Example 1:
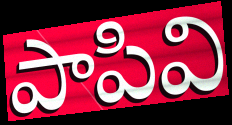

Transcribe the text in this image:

పాపివి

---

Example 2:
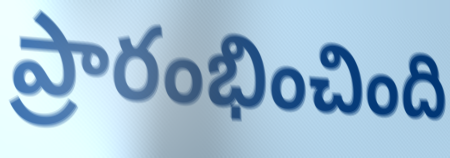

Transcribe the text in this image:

ప్రారంభించింది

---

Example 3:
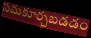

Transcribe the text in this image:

సమకూర్చబడడం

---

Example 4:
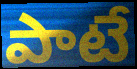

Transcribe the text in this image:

పాటే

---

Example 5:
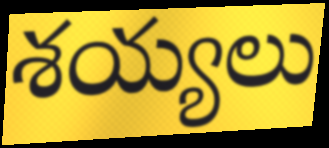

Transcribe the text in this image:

శయ్యలు